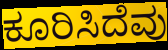
ಕೂರಿಸಿದೆವು